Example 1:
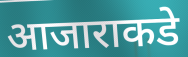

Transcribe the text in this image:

आजाराकडे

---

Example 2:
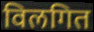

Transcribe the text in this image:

विलगित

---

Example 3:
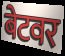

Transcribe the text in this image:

बेटवर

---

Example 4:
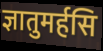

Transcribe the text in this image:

ज्ञातुमर्हसि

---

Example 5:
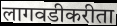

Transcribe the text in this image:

लागवडीकरीता